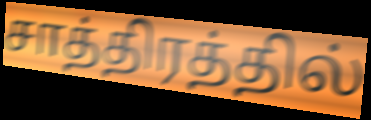
சாத்திரத்தில்